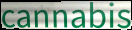
cannabis